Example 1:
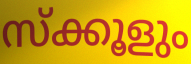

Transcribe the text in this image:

സ്ക്കൂളും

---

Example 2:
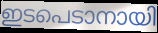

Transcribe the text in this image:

ഇടപെടാനായി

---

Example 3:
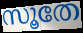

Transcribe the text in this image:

സൂതേ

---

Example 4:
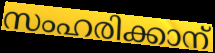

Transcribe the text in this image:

സംഹരിക്കാന്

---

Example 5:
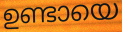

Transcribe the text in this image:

ഉണ്ടായെ